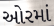
ઓરમાં